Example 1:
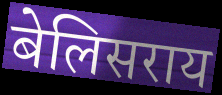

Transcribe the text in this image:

बेलिसराय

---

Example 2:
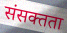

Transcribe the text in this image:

संसक्तता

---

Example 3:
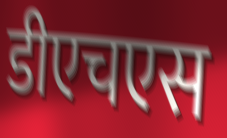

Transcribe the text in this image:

डीएचएस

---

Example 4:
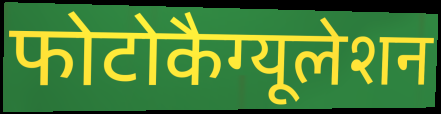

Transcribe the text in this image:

फोटोकैग्यूलेशन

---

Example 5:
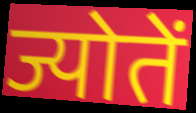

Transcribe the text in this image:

ज्योतें